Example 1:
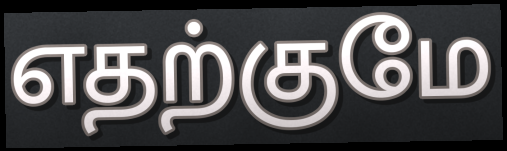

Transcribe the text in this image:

எதற்குமே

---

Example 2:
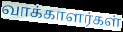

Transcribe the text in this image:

வாக்காளர்கள்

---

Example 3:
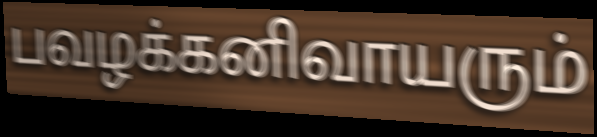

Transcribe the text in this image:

பவழக்கனிவாயரும்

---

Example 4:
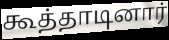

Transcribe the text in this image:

கூத்தாடினார்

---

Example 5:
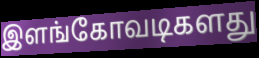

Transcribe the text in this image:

இளங்கோவடிகளது